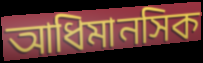
আধিমানসিক